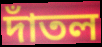
দাঁতল